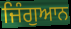
ਜਿੰਗੁਆਨ